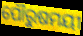
ପୌରୁଷମୟୀ